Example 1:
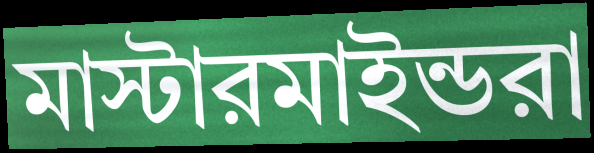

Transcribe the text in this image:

মাস্টারমাইন্ডরা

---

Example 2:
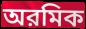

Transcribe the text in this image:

অরমিক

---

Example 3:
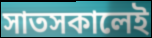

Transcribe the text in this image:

সাতসকালেই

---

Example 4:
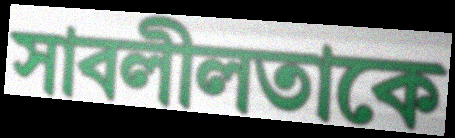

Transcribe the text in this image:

সাবলীলতাকে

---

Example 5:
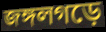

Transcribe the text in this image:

জঙ্গলগড়ে